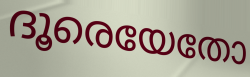
ദൂരെയേതോ